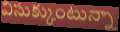
విసుక్కుంటున్నా